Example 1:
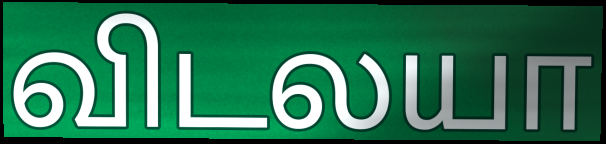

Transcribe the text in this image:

விடலயா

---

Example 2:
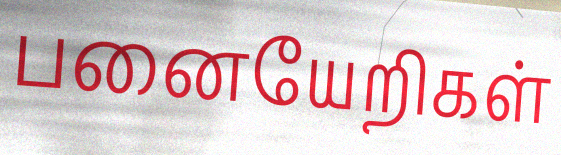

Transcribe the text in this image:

பனையேறிகள்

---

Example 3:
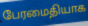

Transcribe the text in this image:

பேரமைதியாக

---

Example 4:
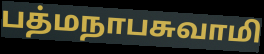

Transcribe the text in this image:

பத்மநாபசுவாமி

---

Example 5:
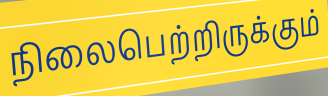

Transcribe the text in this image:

நிலைபெற்றிருக்கும்